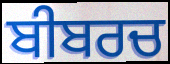
ਬੀਬਰਚ